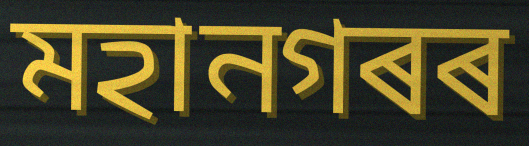
মহানগৰৰ